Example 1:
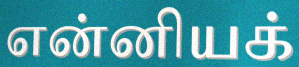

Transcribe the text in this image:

என்னியக்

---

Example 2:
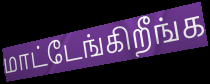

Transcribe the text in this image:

மாட்டேங்கிறீங்க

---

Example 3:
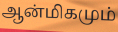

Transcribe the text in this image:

ஆன்மிகமும்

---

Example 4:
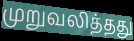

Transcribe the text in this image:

முறுவலித்தது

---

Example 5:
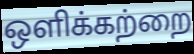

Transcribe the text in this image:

ஒளிக்கற்றை